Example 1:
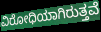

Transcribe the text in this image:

ವಿರೋಧಿಯಾಗಿರುತ್ತವೆ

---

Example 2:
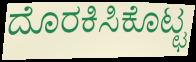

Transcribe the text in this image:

ದೊರಕಿಸಿಕೊಟ್ಟ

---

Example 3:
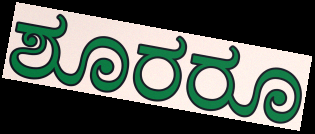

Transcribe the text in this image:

ಶೂರರೂ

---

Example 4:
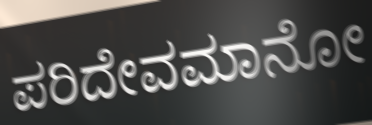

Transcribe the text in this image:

ಪರಿದೇವಮಾನೋ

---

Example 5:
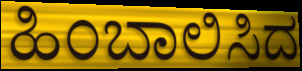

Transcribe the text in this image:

ಹಿಂಬಾಲಿಸಿದ